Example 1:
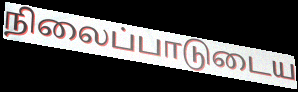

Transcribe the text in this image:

நிலைப்பாடுடைய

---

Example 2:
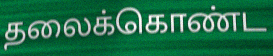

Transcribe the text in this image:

தலைக்கொண்ட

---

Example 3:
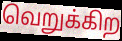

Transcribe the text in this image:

வெறுக்கிற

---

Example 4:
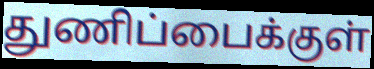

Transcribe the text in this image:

துணிப்பைக்குள்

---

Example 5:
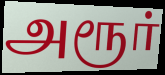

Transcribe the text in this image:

அரூர்